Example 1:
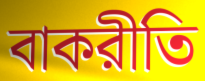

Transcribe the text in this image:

বাকরীতি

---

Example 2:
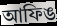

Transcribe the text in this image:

আফিঙ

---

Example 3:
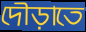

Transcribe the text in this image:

দৌড়াতে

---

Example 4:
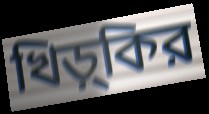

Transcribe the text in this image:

খিড়্‌কির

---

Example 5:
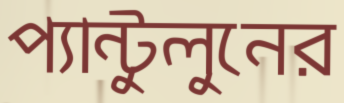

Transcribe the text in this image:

প্যান্টুলুনের